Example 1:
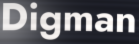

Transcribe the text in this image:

Digman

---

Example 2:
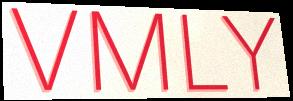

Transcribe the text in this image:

VMLY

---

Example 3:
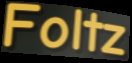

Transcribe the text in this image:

Foltz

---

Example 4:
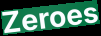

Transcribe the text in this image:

Zeroes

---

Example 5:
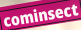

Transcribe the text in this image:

cominsect